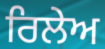
ਰਿਲੇਅ